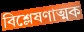
বিশ্লেষণাত্মক